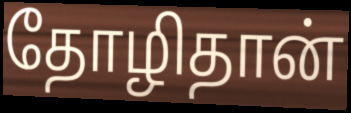
தோழிதான்